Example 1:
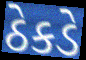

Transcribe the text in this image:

ઠેકડે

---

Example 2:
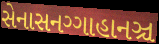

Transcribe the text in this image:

સેનાસનગ્ગાહાનઞ્ચ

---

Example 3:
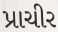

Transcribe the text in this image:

પ્રાચીર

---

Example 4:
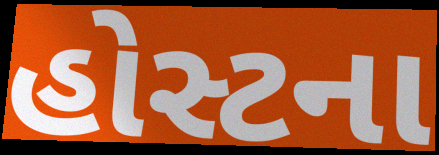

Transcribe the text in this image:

હોસ્ટના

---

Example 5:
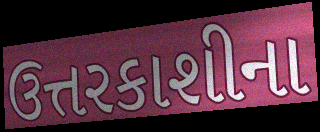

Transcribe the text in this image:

ઉત્તરકાશીના